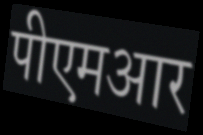
पीएमआर